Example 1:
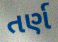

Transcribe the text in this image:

તર્ણ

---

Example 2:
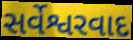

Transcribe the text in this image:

સર્વેશ્વરવાદ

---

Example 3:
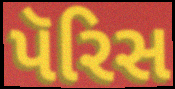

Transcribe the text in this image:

પૅરિસ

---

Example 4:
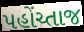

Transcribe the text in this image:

પહોંચ્તાજ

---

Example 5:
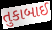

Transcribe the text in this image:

તુકાબાઈ